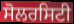
ਸੋਲਰਸਿਟੀ